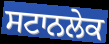
ਸਟਾਨਲੇਕ